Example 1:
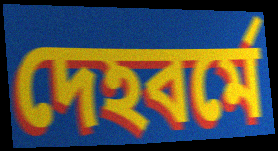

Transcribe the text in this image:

দেহবর্মে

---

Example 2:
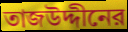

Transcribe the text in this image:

তাজউদ্দীনের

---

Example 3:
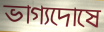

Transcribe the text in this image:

ভাগ্যদোষে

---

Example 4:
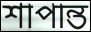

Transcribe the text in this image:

শাপান্ত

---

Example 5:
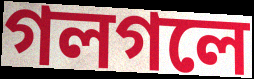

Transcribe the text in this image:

গলগলে